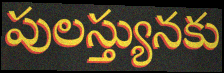
పులస్త్యునకు